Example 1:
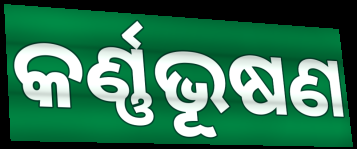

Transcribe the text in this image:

କର୍ଣ୍ଣଭୂଷଣ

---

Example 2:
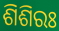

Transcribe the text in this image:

ଶିଶିରଃ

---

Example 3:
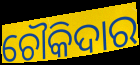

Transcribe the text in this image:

ଚୌକିଦାର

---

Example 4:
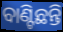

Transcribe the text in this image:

ବାଣ୍ଟିଛନ୍ତି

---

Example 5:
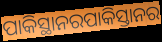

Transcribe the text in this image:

ପାକିସ୍ଥାନରପାକିସ୍ତାନର